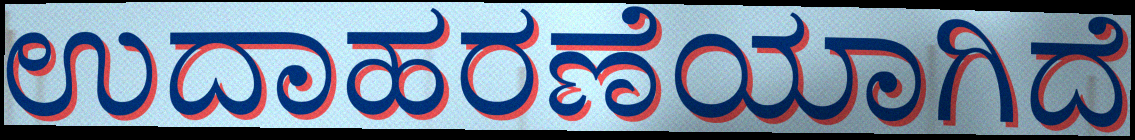
ಉದಾಹರಣೆಯಾಗಿದೆ